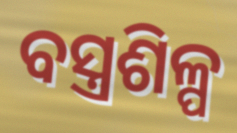
ବସ୍ତ୍ରଶିଳ୍ପ